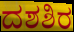
ದಶಶಿರ